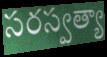
సరస్వత్యా